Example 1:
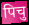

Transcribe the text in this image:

पिचु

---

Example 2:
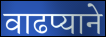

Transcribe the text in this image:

वाढप्याने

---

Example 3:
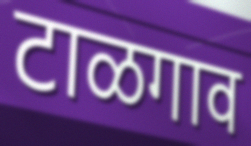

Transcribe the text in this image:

टाळगाव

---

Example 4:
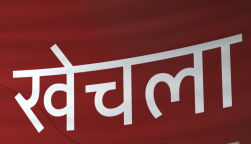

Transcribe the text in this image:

खेचला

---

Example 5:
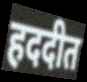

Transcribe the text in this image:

हददीत